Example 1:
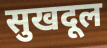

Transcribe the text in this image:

सुखदूल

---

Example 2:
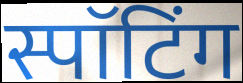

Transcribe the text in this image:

स्पॉटिंग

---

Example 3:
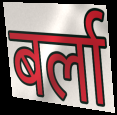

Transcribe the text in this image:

बर्ला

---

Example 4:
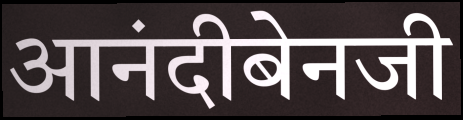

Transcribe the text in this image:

आनंदीबेनजी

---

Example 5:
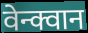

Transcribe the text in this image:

वेन्क्वान